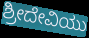
ಶ್ರೀದೇವಿಯು